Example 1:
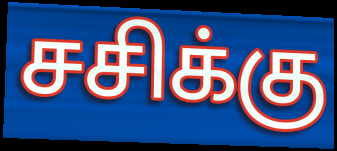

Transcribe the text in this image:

சசிக்கு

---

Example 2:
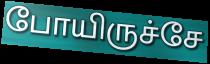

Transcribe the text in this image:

போயிருச்சே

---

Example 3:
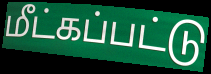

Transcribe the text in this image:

மீட்கப்பட்டு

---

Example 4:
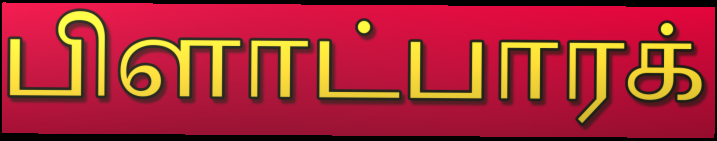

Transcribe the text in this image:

பிளாட்பாரக்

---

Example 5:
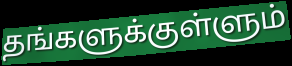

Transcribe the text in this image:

தங்களுக்குள்ளும்